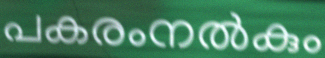
പകരംനൽകും